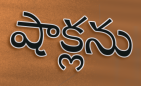
షాక్లను